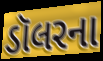
ડૉલરના